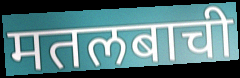
मतलबाची